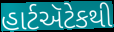
હાર્ટઍટેકથી